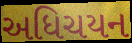
અધિચયન